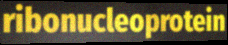
ribonucleoprotein